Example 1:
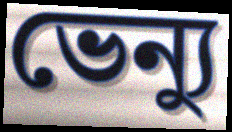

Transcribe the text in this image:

ভেন্যু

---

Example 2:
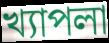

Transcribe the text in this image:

খ্যাপলা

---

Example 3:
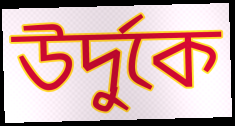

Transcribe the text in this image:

উর্দুকে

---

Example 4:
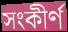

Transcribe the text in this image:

সংকীর্ণ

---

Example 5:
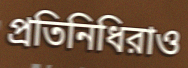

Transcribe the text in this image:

প্রতিনিধিরাও